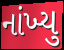
નાંખ્યુ